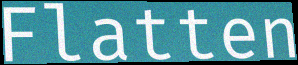
Flatten